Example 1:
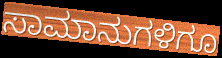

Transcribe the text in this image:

ಸಾಮಾನುಗಳಿಗೂ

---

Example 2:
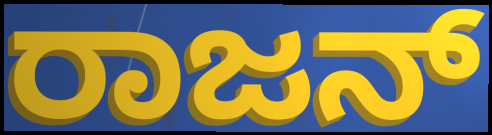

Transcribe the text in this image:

ರಾಜನ್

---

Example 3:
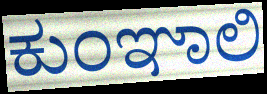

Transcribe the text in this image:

ಕುಂಞಾಲಿ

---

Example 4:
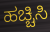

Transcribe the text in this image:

ಹಚ್ಚಿಸಿ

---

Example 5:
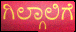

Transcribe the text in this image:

ಗಿಲ್ಗಾಲಿಗೆ